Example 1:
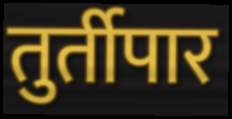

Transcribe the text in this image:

तुर्तीपार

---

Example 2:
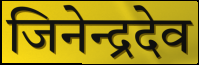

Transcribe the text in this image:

जिनेन्द्रदेव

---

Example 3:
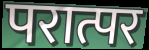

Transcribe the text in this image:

परात्पर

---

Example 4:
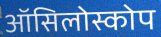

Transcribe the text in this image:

ऑसिलोस्कोप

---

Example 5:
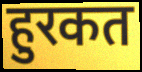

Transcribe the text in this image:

हुरकत